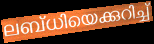
ലബ്ധിയെക്കുറിച്ച്